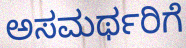
ಅಸಮರ್ಥರಿಗೆ